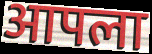
आपला